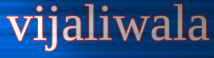
vijaliwala